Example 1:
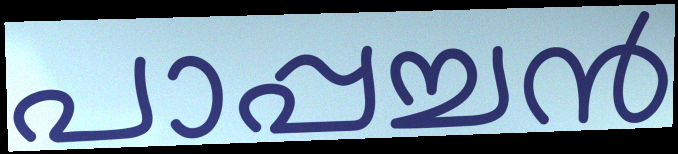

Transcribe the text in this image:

പാപ്പച്ചൻ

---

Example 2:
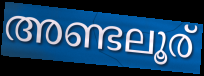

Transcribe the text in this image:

അണ്ടലൂര്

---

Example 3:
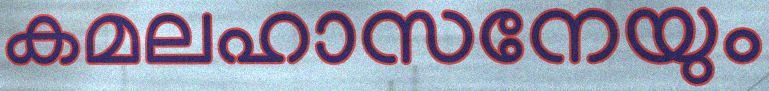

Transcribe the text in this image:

കമലഹാസനേയും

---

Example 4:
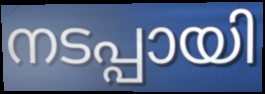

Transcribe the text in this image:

നടപ്പായി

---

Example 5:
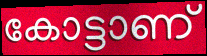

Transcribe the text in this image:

കോട്ടാണ്